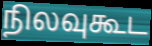
நிலவுகூட